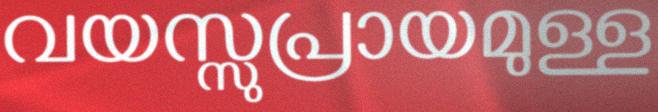
വയസ്സുപ്രായമുള്ള